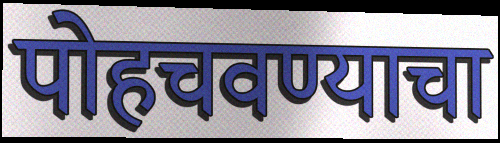
पोहचवण्याचा